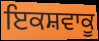
ਇਕਸ਼ਵਾਕੂ